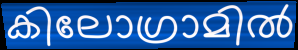
കിലോഗ്രാമിൽ